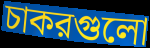
চাকরগুলো